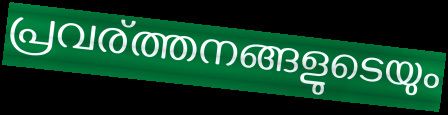
പ്രവര്ത്തനങ്ങളുടെയും